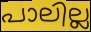
പാലില്ല